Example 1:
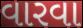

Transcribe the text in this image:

વારવા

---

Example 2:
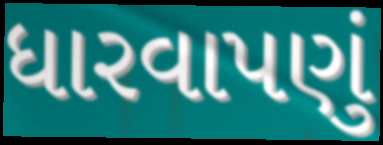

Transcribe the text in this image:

ધારવાપણું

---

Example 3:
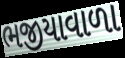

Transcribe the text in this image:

ભજીયાવાળા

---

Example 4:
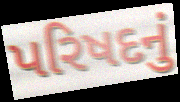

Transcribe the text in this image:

પરિષદનું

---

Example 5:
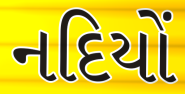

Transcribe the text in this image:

નદિયોં